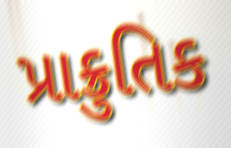
પ્રાક્રુતિક